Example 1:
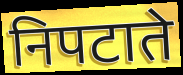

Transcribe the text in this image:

निपटाते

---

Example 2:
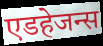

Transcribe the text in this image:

एडहेजन्स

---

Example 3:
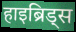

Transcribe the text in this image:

हाइब्रिड्स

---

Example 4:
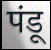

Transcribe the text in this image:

पंडू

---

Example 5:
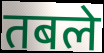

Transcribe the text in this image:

तबले